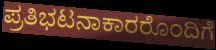
ಪ್ರತಿಭಟನಾಕಾರರೊಂದಿಗೆ